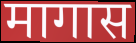
मागास